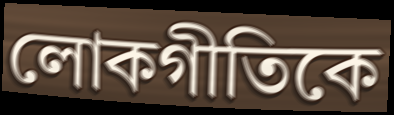
লোকগীতিকে